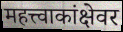
महत्त्वाकांक्षेवर